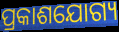
ପ୍ରକାଶଯୋଗ୍ୟ